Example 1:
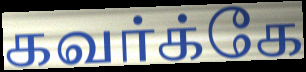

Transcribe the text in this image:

கவர்க்கே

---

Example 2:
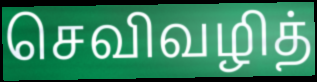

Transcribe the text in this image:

செவிவழித்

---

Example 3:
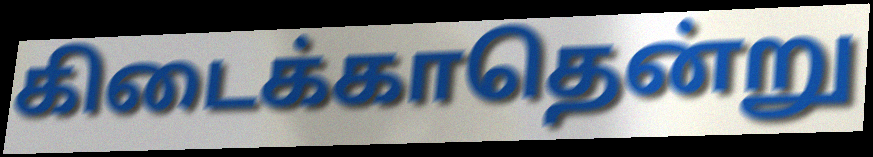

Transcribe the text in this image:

கிடைக்காதென்று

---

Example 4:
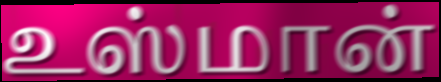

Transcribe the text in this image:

உஸ்மான்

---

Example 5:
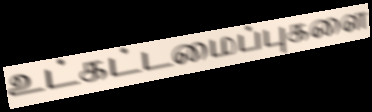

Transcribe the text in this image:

உட்கட்டமைப்புகளை